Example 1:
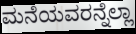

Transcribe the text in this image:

ಮನೆಯವರನ್ನೆಲ್ಲಾ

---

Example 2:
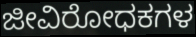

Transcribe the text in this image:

ಜೀವಿರೋಧಕಗಳ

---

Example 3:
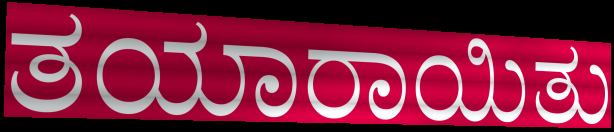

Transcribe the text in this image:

ತಯಾರಾಯಿತು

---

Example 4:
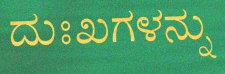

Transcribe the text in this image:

ದುಃಖಗಳನ್ನು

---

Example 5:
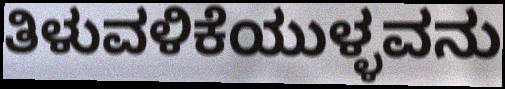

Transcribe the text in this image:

ತಿಳುವಳಿಕೆಯುಳ್ಳವನು